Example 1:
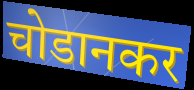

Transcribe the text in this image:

चोडानकर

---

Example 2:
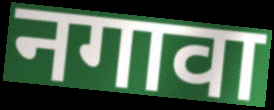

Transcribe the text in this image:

नगावा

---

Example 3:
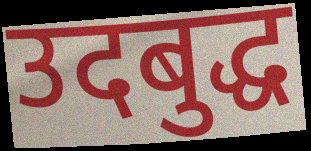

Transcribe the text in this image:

उदबुद्ध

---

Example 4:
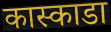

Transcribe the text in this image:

कास्काडा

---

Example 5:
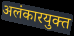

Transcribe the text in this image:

अलंकारयुक्त